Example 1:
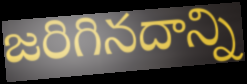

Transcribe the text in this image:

జరిగినదాన్ని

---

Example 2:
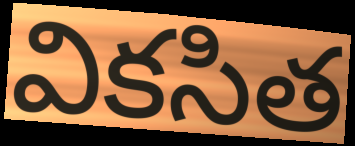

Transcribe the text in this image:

వికసిత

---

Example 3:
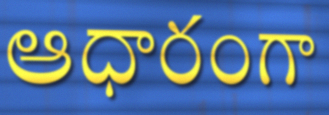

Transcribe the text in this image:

ఆధారంగా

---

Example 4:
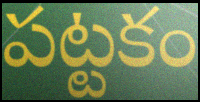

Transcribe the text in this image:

పట్టకం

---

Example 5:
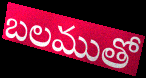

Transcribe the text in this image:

బలముతో